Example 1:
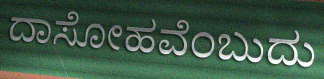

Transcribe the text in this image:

ದಾಸೋಹವೆಂಬುದು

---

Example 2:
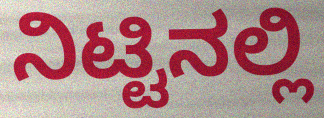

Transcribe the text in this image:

ನಿಟ್ಟಿನಲ್ಲಿ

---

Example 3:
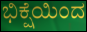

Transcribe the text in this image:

ಭಿಕ್ಷೆಯಿಂದ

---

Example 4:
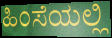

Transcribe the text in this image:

ಹಿಂಸೆಯಲ್ಲಿ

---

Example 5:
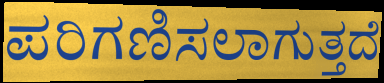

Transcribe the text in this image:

ಪರಿಗಣಿಸಲಾಗುತ್ತದೆ